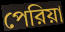
পেরিয়া